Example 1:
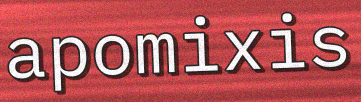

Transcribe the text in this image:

apomixis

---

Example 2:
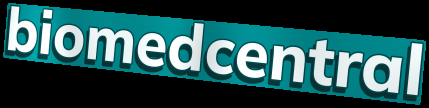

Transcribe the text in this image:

biomedcentral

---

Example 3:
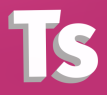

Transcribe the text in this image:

Ts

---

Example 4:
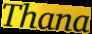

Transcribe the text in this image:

Thana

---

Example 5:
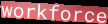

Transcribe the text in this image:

workforce